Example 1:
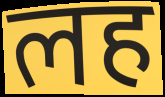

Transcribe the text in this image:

लह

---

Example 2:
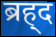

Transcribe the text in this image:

ब्रह्द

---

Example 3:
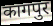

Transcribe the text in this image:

कागपुर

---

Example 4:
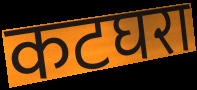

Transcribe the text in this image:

कटघरा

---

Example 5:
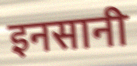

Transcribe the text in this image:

इनसानी